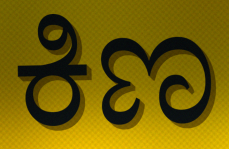
ಕಿಣ